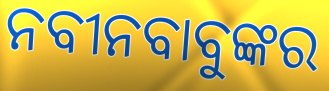
ନବୀନବାବୁଙ୍କର